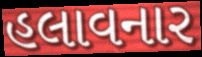
હલાવનાર